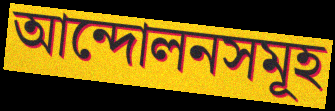
আন্দোলনসমূহ